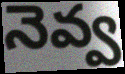
నెవ్వ